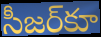
సీజర్‌కూ